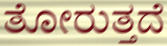
ತೋರುತ್ತದೆ